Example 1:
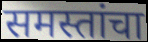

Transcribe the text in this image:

समस्तांचा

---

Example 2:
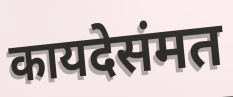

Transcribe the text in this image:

कायदेसंमत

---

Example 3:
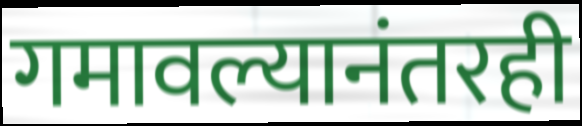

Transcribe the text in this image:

गमावल्यानंतरही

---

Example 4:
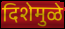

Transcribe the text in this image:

दिशेमुळे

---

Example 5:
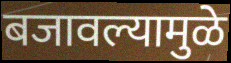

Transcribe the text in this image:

बजावल्यामुळे